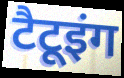
टैटूइंग